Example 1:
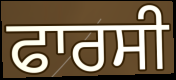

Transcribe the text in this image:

ਫਾਰਸੀ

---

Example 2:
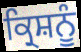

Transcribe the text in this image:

ਕ੍ਰਿਸ਼ਨੂੰ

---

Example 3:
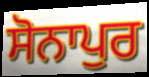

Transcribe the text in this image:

ਸੋਨਾਪੁਰ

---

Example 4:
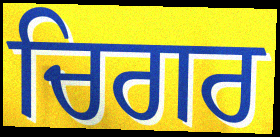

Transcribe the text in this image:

ਚਿਗਰ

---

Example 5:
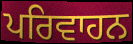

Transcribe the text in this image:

ਪਰਿਵਾਹਨ